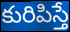
కురిపిస్తే